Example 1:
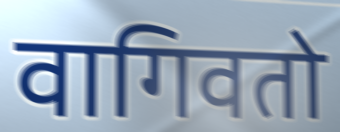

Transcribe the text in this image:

वागिवतो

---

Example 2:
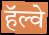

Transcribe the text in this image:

हॅल्वे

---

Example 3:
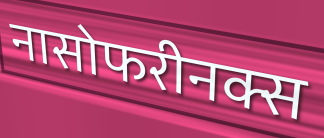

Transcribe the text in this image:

नासोफरीनक्स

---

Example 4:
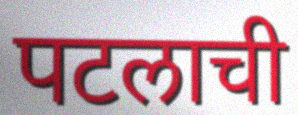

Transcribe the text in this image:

पटलाची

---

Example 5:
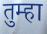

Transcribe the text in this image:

तुम्हा